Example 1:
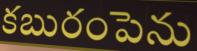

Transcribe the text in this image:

కబురంపెను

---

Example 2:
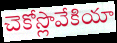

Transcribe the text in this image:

చెకోస్లొవేకియా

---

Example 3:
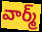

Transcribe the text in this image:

వార్మ్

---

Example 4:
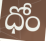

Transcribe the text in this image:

ధోం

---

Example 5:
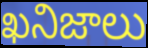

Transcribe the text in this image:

ఖనిజాలు